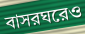
বাসরঘরেও